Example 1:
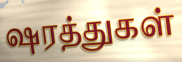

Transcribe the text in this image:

ஷரத்துகள்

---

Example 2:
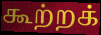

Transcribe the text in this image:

கூற்றக்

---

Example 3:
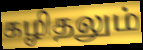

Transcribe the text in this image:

கழிதலும்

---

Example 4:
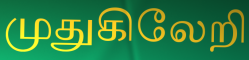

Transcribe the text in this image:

முதுகிலேறி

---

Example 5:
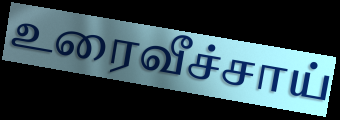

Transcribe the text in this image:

உரைவீச்சாய்